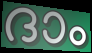
ദാം